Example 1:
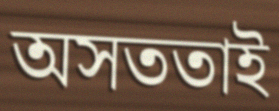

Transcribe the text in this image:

অসততাই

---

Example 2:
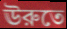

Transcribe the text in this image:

ঊরুতে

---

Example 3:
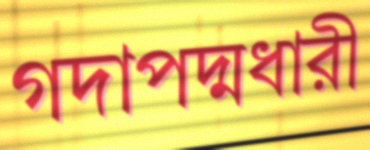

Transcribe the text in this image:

গদাপদ্মধারী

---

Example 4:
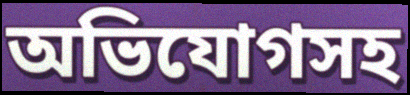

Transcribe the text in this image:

অভিযোগসহ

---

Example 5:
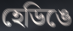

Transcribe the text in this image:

হেডিঙে